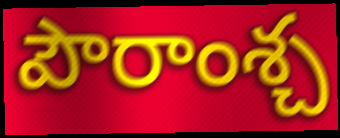
పౌరాంశ్చ